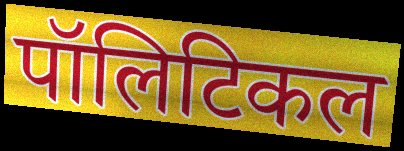
पॉलिटिकल